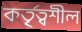
কৰ্তৃত্বশীল